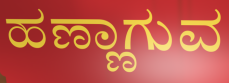
ಹಣ್ಣಾಗುವ